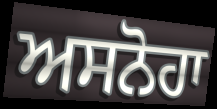
ਅਸਨੋਹਾ